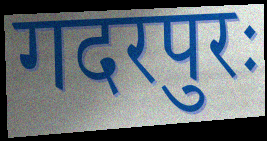
गदरपुरः